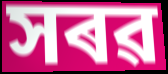
সৰৱ